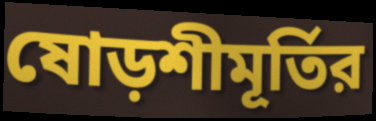
ষোড়শীমূর্তির